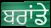
ਬਰਾਂਡੇ